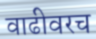
वाढीवरच